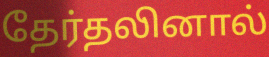
தேர்தலினால்